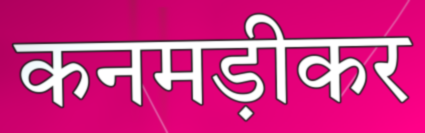
कनमड़ीकर